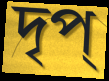
দৃপ্